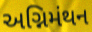
અગ્નિમંથન